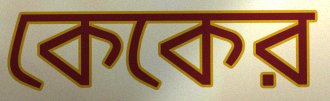
কেকের